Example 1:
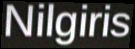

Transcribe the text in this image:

Nilgiris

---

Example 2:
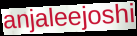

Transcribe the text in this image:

anjaleejoshi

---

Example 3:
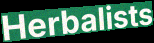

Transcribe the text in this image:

Herbalists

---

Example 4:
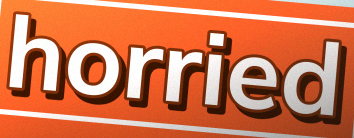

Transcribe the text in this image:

horried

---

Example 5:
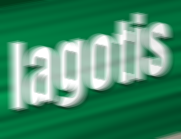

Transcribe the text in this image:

lagotis